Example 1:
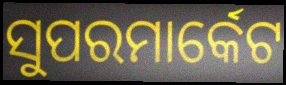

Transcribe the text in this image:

ସୁପରମାର୍କେଟ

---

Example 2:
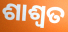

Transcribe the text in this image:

ଶାଶ୍ଵତ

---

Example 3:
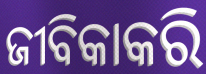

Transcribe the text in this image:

ଜୀବିକାକରି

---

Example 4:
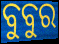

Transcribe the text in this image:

ବୁବୁର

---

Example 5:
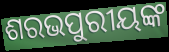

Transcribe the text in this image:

ଶରଭପୁରୀୟଙ୍କ